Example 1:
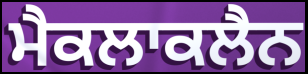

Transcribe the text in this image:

ਮੈਕਲਾਕਲੈਨ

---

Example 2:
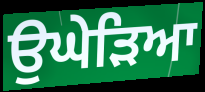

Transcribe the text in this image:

ਉਘੇੜਿਆ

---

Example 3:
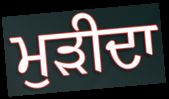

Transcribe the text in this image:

ਮੁੜੀਦਾ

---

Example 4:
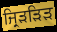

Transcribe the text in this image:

ਜ੍ਰਿੜੜਿੜ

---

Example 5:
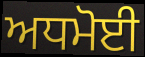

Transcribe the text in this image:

ਅਧਮੋਈ